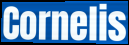
Cornelis